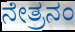
ನೇತ್ರನಂ